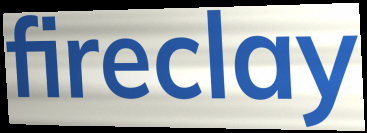
fireclay